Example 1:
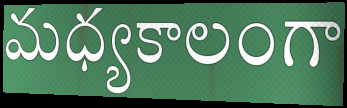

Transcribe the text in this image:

మధ్యకాలంగా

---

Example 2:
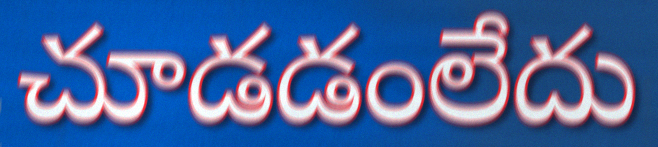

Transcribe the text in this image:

చూడడంలేదు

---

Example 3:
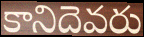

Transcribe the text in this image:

కానిదెవరు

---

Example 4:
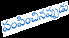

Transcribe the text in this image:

పంపించినప్పుడు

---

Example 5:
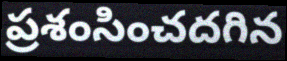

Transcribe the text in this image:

ప్రశంసించదగిన